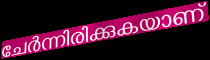
ചേർന്നിരിക്കുകയാണ്